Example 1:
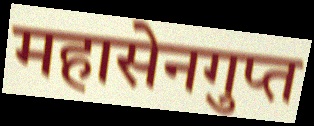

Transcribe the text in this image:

महासेनगुप्त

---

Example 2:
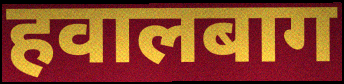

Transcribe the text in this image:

हवालबाग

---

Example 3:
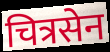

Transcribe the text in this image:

चित्रसेन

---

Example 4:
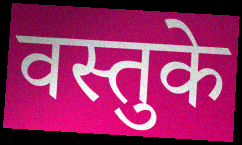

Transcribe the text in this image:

वस्तुके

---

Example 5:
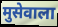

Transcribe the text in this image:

मुसेवाला